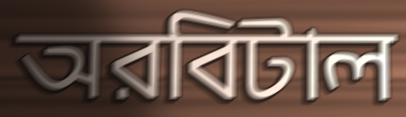
অরবিটাল